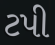
ટપી